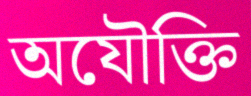
অযৌক্তি